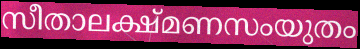
സീതാലക്ഷ്മണസംയുതം